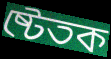
ষ্টেতক